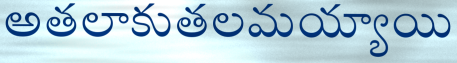
అతలాకుతలమయ్యాయి